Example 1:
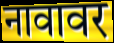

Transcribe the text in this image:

नावावर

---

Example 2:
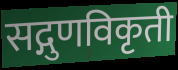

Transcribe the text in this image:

सद्गुणविकृती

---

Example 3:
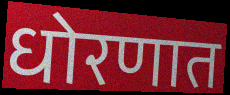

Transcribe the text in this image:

धोरणात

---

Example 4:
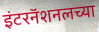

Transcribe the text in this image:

इंटरनॅशनलच्या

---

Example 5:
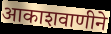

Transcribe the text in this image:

आकाशवाणीने